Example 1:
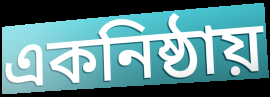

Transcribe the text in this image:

একনিষ্ঠায়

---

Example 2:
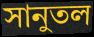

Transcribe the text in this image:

সানুতল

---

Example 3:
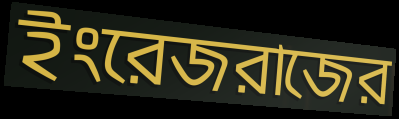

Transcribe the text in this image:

ইংরেজরাজের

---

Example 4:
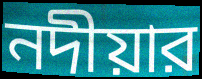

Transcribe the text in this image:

নদীয়ার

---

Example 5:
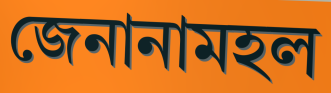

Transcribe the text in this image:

জেনানামহল